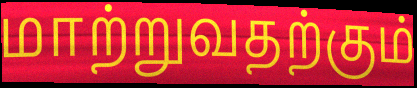
மாற்றுவதற்கும்